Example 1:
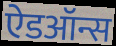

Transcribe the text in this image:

ऐडऑन्स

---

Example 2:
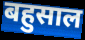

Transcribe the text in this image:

बहुसाल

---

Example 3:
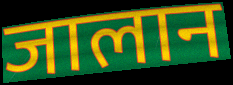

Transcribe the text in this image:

जालान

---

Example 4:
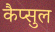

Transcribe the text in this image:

कैप्सुल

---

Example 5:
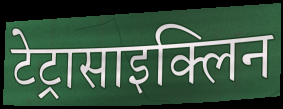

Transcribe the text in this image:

टेट्रासाइक्लिन